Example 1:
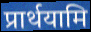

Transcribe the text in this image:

प्रार्थयामि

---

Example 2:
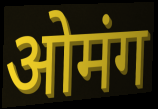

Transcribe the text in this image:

ओमंग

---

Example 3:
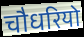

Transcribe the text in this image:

चौधरियो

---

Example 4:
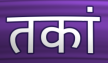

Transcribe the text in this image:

तकां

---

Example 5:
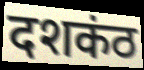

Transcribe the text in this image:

दशकंठ